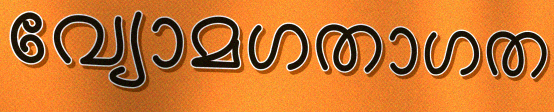
വ്യോമഗതാഗത